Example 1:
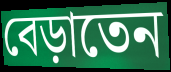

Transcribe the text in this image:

বেড়াতেন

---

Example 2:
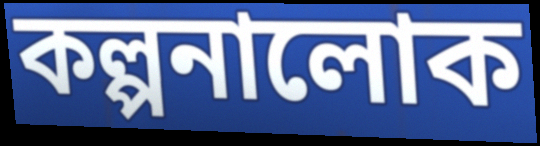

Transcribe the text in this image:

কল্পনালোক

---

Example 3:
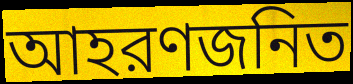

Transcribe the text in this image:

আহরণজনিত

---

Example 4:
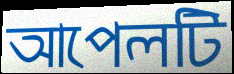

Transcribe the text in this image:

আপেলটি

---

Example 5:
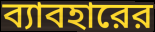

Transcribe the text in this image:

ব্যাবহারের